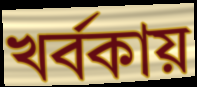
খর্বকায়